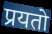
प्रयतो